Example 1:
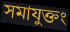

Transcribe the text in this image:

সমাযুক্তং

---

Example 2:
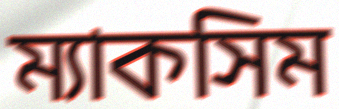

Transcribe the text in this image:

ম্যাকসিম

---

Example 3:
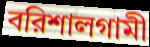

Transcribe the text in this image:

বরিশালগামী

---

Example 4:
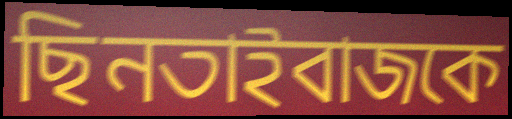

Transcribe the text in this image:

ছিনতাইবাজকে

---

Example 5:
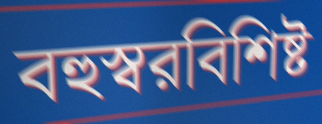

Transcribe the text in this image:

বহুস্বরবিশিষ্ট